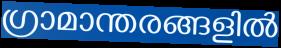
ഗ്രാമാന്തരങ്ങളിൽ